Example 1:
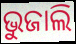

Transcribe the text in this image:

ଭୁଜାଲି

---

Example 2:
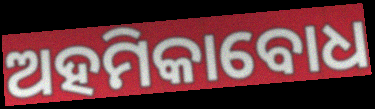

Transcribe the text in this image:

ଅହମିକାବୋଧ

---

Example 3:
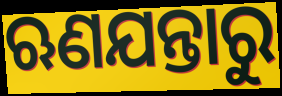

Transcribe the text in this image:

ଋଣଯନ୍ତାରୁ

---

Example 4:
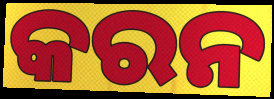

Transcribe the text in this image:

କରନ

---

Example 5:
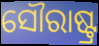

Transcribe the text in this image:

ସୌରାଷ୍ଟ୍ର